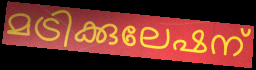
മട്രിക്കുലേഷന്